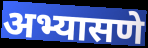
अभ्यासणे